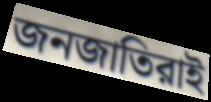
জনজাতিরাই